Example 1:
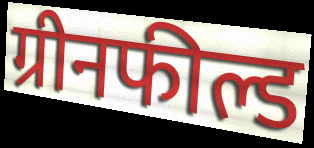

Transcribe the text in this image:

ग्रीनफील्ड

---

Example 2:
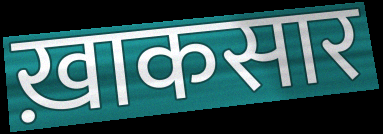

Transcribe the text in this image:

ख़ाकसार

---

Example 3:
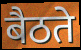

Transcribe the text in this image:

बैठते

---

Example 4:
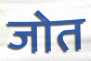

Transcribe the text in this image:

जोत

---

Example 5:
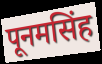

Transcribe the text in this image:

पूनमसिंह